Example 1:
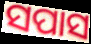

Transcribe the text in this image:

ସପାସ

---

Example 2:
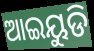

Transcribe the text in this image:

ଆଇୟୁଡି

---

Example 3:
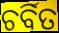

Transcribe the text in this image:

ଚର୍ବିତ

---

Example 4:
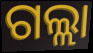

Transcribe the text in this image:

ଗଲ୍ଲା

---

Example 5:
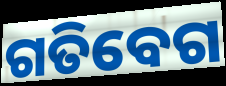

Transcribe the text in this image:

ଗତିବେଗ